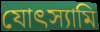
যোৎস্যামি